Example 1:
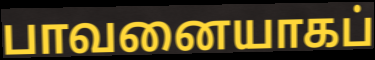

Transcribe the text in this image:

பாவனையாகப்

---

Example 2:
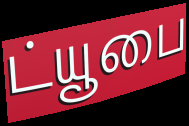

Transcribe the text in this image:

ட்யூபை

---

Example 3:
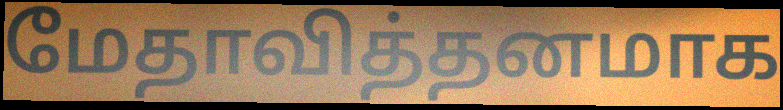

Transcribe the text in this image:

மேதாவித்தனமாக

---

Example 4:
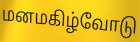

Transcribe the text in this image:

மனமகிழ்வோடு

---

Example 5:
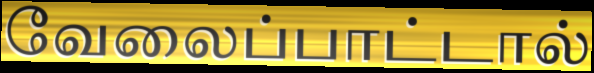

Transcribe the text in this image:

வேலைப்பாட்டால்